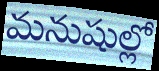
మనుషుల్లో